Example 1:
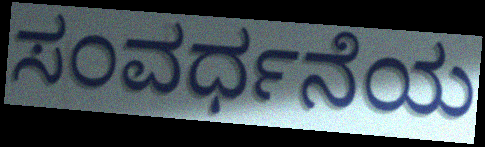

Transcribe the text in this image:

ಸಂವರ್ಧನೆಯ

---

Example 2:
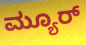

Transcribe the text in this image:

ಮ್ಯೂರ್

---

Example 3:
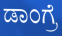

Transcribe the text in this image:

ಡಾಂಗ್ರೆ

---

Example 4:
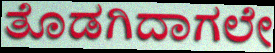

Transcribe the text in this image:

ತೊಡಗಿದಾಗಲೇ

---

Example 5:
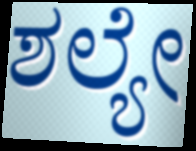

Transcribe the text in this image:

ಶಲ್ಯೇ